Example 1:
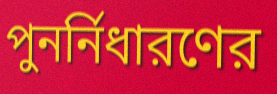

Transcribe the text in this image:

পুনর্নিধারণের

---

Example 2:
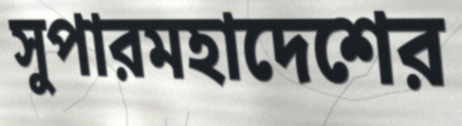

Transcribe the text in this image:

সুপারমহাদেশের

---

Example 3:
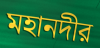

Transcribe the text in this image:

মহানদীর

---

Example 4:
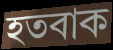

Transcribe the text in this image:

হতবাক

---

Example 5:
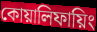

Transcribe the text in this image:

কোয়ালিফায়িং